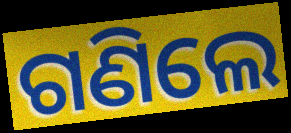
ଗଣିଲେ